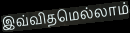
இவ்விதமெல்லாம்